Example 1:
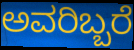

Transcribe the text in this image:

ಅವರಿಬ್ಬರೆ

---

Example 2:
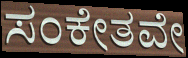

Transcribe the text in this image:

ಸಂಕೇತವೇ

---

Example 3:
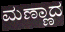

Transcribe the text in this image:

ಮಣ್ಣಾದ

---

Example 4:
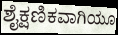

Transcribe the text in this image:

ಶೈಕ್ಷಣಿಕವಾಗಿಯೂ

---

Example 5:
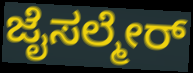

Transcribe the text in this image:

ಜೈಸಲ್ಮೇರ್